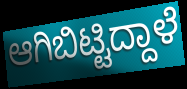
ಆಗಿಬಿಟ್ಟಿದ್ದಾಳೆ